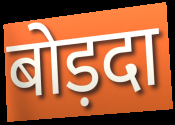
बोड़दा